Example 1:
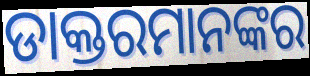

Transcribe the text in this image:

ଡାକ୍ତରମାନଙ୍କର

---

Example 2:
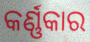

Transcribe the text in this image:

କର୍ଣ୍ଣକାର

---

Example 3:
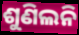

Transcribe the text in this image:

ଶୁଣିଲନି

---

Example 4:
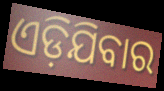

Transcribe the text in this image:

ଏଡ଼ିଯିବାର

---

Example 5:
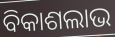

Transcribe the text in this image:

ବିକାଶଲାଭ